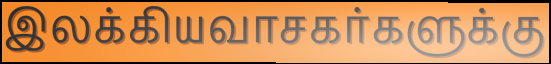
இலக்கியவாசகர்களுக்கு